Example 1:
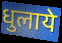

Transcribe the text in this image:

धुलाये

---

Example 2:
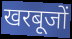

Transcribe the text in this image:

खरबूजों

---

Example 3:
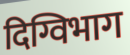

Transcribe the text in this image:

दिग्विभाग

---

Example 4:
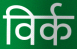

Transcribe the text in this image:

विर्क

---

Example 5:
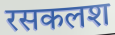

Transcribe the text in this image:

रसकलश